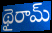
థైరామ్